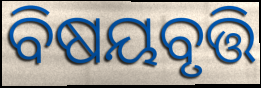
ବିଷୟବୃତ୍ତି